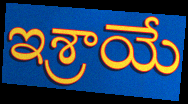
ఇశ్రాయే